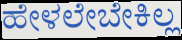
ಹೇಳಲೇಬೇಕಿಲ್ಲ